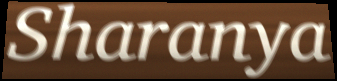
Sharanya